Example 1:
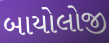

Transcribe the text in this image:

બાયોલોજી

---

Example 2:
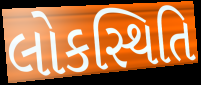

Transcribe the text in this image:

લોકસ્થિતિ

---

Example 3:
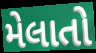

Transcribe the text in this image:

મેલાતો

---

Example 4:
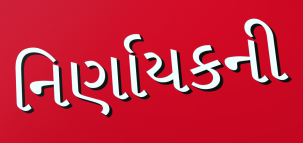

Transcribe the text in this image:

નિર્ણાયકની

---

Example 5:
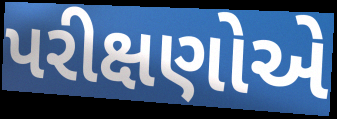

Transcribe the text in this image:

પરીક્ષણોએ